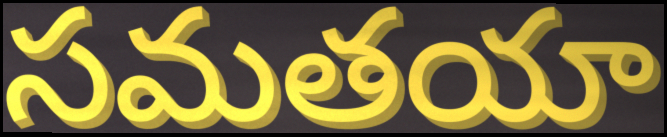
సమతయా